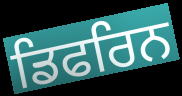
ਡਿਫਰਿਨ